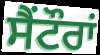
ਸੈਂਟੌਰਾਂ